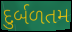
દુર્બળતમ